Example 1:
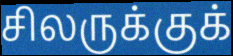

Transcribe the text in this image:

சிலருக்குக்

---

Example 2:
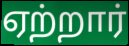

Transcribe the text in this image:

ஏற்றார்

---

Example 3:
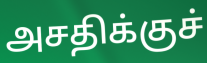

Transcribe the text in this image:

அசதிக்குச்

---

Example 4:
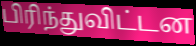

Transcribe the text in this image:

பிரிந்துவிட்டன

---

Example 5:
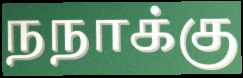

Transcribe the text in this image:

நநாக்கு